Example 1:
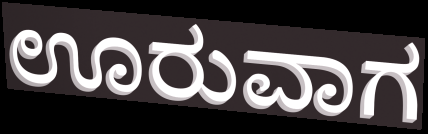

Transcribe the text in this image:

ಊರುವಾಗ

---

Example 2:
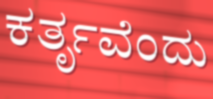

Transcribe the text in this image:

ಕರ್ತೃವೆಂದು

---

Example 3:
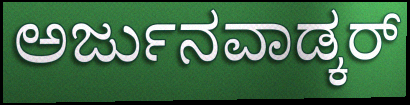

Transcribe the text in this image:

ಅರ್ಜುನವಾಡ್ಕರ್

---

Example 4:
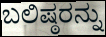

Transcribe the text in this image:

ಬಲಿಷ್ಠರನ್ನು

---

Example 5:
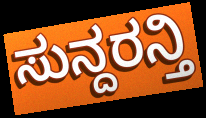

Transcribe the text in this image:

ಸುನ್ದರನ್ತಿ